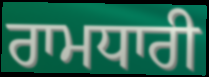
ਰਾਮਧਾਰੀ